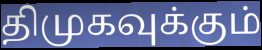
திமுகவுக்கும்